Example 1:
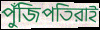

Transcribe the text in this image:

পুঁজিপতিরাই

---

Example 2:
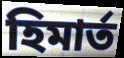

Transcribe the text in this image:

হিমার্ত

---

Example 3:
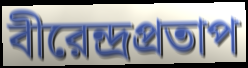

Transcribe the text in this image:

বীরেন্দ্রপ্রতাপ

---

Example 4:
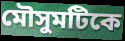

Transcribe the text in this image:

মৌসুমটিকে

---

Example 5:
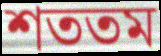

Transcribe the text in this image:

শততম